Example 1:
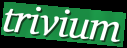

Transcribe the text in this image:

trivium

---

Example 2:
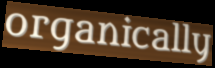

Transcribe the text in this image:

organically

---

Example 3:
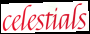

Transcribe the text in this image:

celestials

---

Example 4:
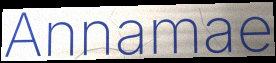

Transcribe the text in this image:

Annamae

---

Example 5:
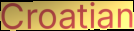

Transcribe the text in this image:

Croatian